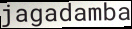
jagadamba